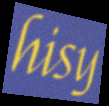
hisy